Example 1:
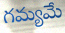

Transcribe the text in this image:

గమ్యమే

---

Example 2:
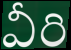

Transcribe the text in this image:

వీరి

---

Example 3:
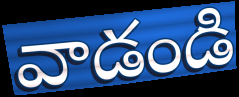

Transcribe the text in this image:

వాడండి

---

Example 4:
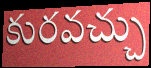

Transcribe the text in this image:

కురవచ్చు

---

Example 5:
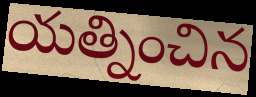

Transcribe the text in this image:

యత్నించిన